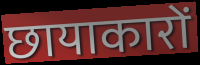
छायाकारों